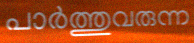
പാർത്തുവരുന്ന